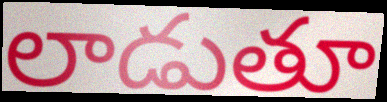
లాడుతూ